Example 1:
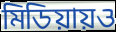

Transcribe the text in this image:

মিডিয়ায়ও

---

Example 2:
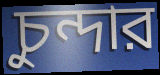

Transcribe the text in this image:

চুন্দার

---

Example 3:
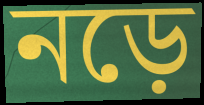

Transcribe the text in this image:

নড়ে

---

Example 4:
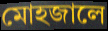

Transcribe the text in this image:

মোহজালে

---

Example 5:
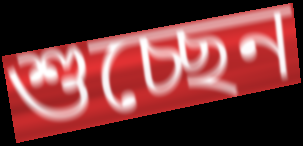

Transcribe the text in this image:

শুচ্ছেন